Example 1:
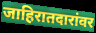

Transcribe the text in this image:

जाहिरातदारांवर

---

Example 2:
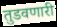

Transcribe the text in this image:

तुडवणारी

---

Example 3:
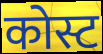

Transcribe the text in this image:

कोस्ट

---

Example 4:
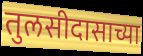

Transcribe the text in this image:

तुलसीदासाच्या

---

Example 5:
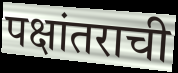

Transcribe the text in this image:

पक्षांतराची